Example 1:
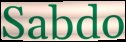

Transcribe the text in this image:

Sabdo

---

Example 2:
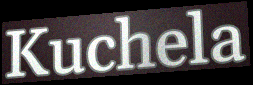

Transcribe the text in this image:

Kuchela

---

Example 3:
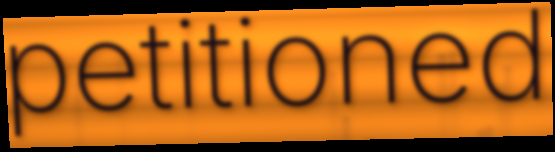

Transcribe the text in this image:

petitioned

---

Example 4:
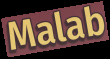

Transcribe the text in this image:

Malab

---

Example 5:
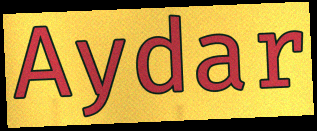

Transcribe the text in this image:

Aydar